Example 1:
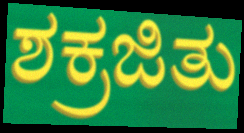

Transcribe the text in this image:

ಶಕ್ರಜಿತು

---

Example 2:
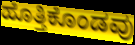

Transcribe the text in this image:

ಹೊತ್ತಿಕೊಂಡವು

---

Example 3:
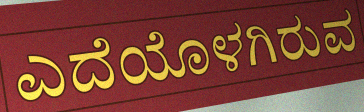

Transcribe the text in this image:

ಎದೆಯೊಳಗಿರುವ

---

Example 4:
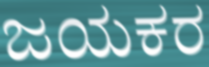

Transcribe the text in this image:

ಜಯಕರ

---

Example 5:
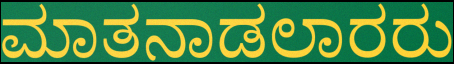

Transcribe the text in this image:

ಮಾತನಾಡಲಾರರು